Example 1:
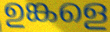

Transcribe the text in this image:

ഉങ്കളെ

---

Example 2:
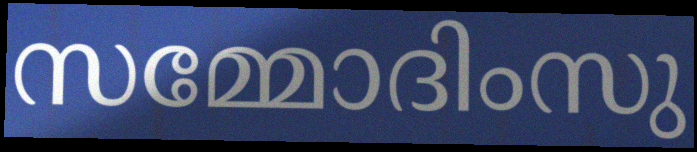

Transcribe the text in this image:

സമ്മോദിംസു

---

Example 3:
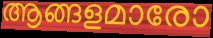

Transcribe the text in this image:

ആങ്ങളമാരോ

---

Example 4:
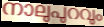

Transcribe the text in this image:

നാലുപുറവും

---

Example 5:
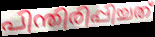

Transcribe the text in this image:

പിന്തിരിപ്പിച്ചത്